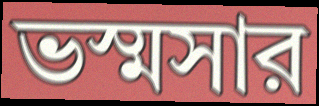
ভস্মসার